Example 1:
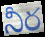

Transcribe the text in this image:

నీర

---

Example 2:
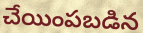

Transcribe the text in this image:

చేయింపబడిన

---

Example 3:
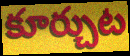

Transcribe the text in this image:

కూర్చుట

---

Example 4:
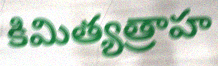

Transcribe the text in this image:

కిమిత్యత్రాహ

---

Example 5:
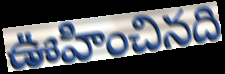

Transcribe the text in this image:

ఊహించినది